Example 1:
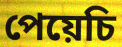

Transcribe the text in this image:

পেয়েচি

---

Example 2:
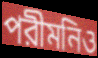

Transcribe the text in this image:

পরীমনিও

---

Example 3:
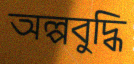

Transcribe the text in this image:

অল্পবুদ্ধি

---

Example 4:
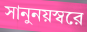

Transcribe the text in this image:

সানুনয়স্বরে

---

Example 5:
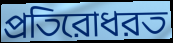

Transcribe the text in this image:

প্রতিরোধরত